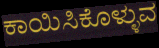
ಕಾಯಿಸಿಕೊಳ್ಳುವ